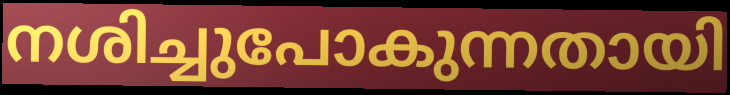
നശിച്ചുപോകുന്നതായി